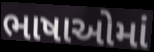
ભાષાઓમાં